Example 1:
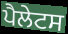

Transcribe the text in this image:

ਪੈਲੇਟਸ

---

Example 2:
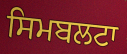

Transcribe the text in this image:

ਸਿਮਬਲਟਾ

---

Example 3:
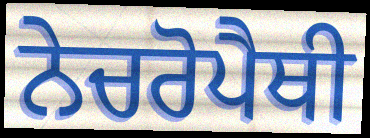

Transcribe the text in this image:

ਨੇਚਰੋਪੈਥੀ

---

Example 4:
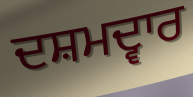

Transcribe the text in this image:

ਦਸ਼ਮਦ੍ਵਾਰ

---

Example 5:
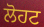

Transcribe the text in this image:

ਲੋਹਟ